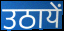
उठायें